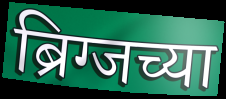
ब्रिग्जच्या